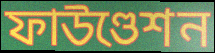
ফাউণ্ডেশন